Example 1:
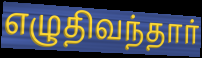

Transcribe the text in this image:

எழுதிவந்தார்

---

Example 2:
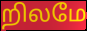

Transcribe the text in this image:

றிலமே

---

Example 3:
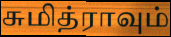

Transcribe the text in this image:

சுமித்ராவும்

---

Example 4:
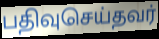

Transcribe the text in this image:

பதிவுசெய்தவர்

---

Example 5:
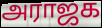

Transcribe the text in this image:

அராஜக